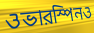
ওভারস্পিনও